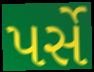
પર્સે